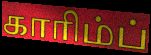
காரிம்ப்